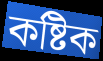
কষ্টিক